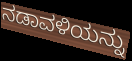
ನಡಾವಳಿಯನ್ನು